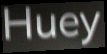
Huey